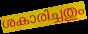
ശകാരിച്ചതും